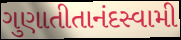
ગુણાતીતાનંદસ્વામી